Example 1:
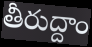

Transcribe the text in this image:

తీరుద్దాం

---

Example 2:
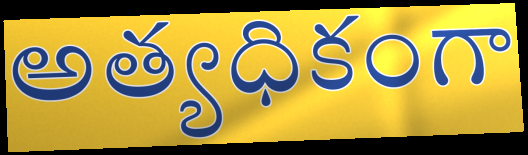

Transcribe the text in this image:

అత్యధికంగా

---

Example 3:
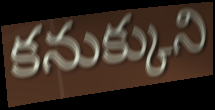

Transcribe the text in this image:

కనుక్కుని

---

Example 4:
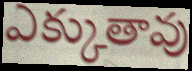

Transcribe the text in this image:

ఎక్కుతావు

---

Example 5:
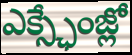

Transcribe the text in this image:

ఎక్స్ఛేంజ్లో